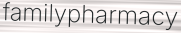
familypharmacy